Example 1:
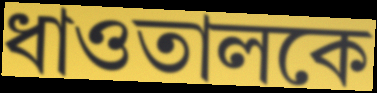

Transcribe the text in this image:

ধাওতালকে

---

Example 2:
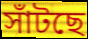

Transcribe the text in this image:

সাঁটছে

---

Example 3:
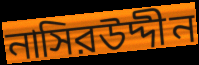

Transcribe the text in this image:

নাসিরউদ্দীন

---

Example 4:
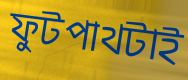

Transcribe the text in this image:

ফুটপাথটাই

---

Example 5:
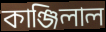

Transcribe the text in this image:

কাঞ্জিলাল